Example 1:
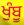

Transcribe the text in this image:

ਖੁੰਬੂ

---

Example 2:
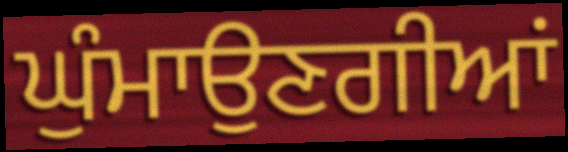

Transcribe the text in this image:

ਘੁੰਮਾਉਣਗੀਆਂ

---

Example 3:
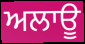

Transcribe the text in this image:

ਅਲਾਊ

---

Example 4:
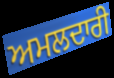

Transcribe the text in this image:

ਅਮਲਦਾਰੀ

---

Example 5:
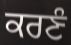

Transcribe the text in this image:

ਕਰਣੰ